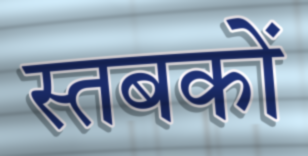
स्तबकों